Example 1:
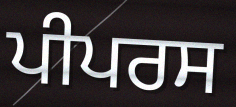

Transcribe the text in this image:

ਪੀਪਰਸ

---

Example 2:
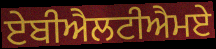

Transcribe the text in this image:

ਏਬੀਐਲਟੀਐਮਏ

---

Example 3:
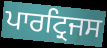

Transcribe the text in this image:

ਪਾਰਟ੍ਰਿਜਸ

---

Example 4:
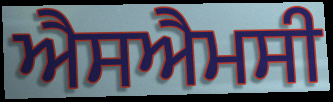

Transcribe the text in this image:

ਐਸਐਮਸੀ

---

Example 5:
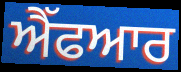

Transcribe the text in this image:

ਐੱਫਆਰ